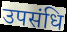
उपसंधि